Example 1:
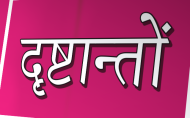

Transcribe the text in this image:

दृष्टान्तों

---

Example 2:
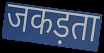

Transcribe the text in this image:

जकड़ता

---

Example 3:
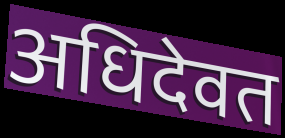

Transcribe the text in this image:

अधिदेवत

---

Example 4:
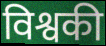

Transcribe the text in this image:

विश्वकी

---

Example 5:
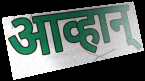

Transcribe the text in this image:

आव्हान्